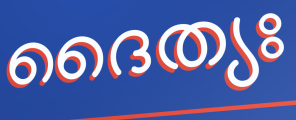
ദൈത്യഃ